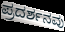
ಪ್ರದರ್ಶನವು